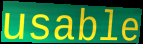
usable